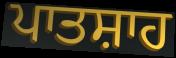
ਪਾਤਸ਼ਾਹ